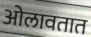
ओलावतात